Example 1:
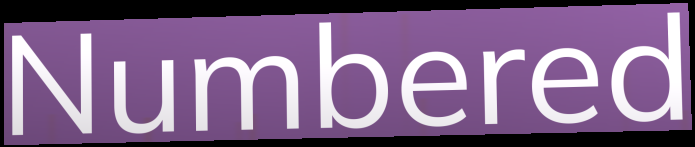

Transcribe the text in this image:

Numbered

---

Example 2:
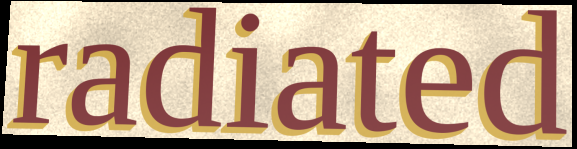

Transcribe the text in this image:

radiated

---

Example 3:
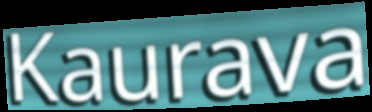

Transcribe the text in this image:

Kaurava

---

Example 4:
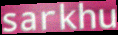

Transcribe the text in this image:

sarkhu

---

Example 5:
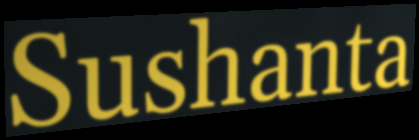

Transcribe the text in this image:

Sushanta